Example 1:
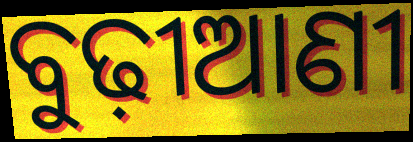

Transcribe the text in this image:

ବୁଢ଼ୀଆଣୀ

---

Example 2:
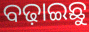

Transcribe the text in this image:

ବଢ଼ାଇଛୁ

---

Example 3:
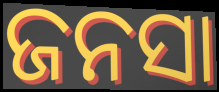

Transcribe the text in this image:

ଜନସା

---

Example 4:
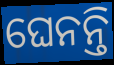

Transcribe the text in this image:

ଘେନନ୍ତି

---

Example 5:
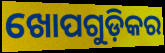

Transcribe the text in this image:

ଖୋପଗୁଡ଼ିକର